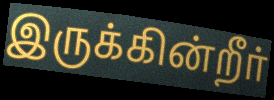
இருக்கின்றீர்